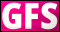
GFS